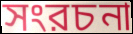
সংরচনা